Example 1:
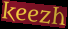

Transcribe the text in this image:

keezh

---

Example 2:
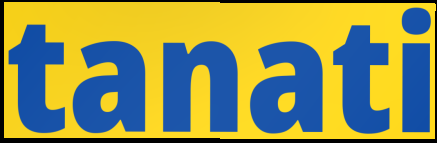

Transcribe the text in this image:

tanati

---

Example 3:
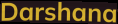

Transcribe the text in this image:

Darshana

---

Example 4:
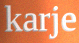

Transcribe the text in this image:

karje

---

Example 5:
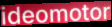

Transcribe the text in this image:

ideomotor